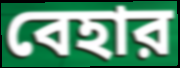
বেহার